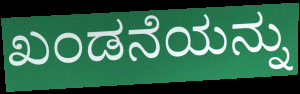
ಖಂಡನೆಯನ್ನು